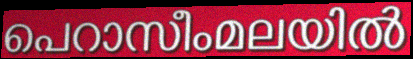
പെറാസീംമലയിൽ